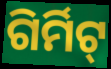
ଗିର୍ମିଟ୍